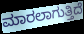
ಮಾರಲಾಗುತ್ತಿದೆ